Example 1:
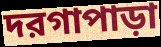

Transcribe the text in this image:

দরগাপাড়া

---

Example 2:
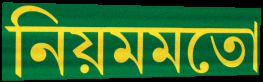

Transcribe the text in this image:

নিয়মমতো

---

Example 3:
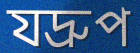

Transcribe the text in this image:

যদ্রুপ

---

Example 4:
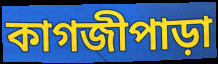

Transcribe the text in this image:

কাগজীপাড়া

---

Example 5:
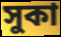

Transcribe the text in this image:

সুকা